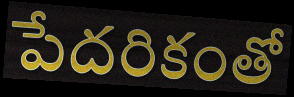
పేదరికంతో